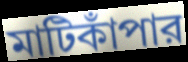
মাটিকাঁপার